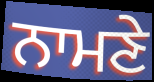
ਨਾਮਣੇ